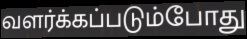
வளர்க்கப்படும்போது